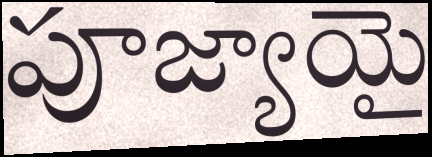
పూజ్యాయై